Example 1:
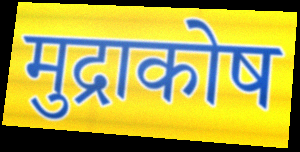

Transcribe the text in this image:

मुद्राकोष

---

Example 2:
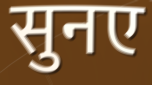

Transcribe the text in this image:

सुनए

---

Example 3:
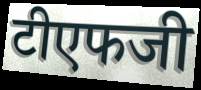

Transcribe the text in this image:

टीएफजी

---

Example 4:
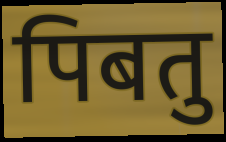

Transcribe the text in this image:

पिबतु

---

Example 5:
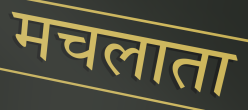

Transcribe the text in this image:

मचलाता